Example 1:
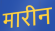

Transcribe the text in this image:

मारीन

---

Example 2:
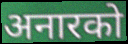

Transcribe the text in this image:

अनारको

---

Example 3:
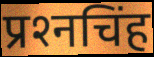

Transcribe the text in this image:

प्रश्नचिंह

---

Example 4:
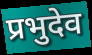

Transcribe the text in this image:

प्रभुदेव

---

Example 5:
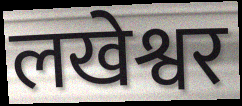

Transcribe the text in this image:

लखेश्वर